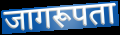
जागरूपता